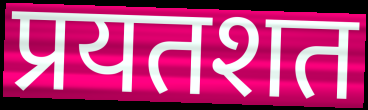
प्रयतशत